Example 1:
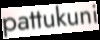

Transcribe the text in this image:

pattukuni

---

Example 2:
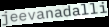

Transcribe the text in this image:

jeevanadalli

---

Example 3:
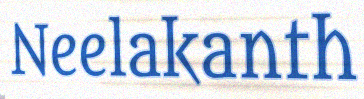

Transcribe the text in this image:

Neelakanth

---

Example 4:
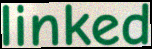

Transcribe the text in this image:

linked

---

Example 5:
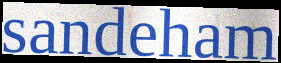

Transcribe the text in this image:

sandeham